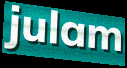
julam